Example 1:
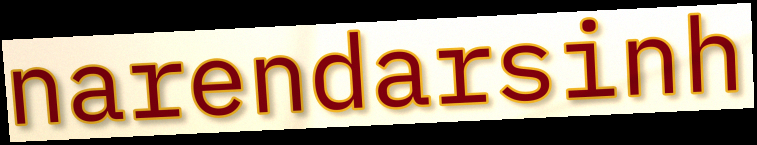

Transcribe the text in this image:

narendarsinh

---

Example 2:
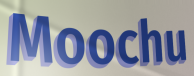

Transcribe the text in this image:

Moochu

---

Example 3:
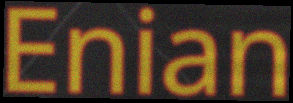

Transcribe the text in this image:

Enian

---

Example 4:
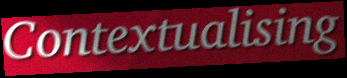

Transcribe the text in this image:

Contextualising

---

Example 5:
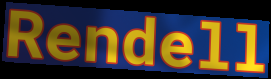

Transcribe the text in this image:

Rendell